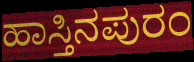
ಹಾಸ್ತಿನಪುರಂ